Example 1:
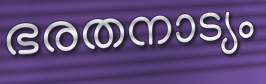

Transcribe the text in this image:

ഭരതനാട്യം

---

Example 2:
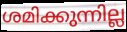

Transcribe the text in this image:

ശമിക്കുന്നില്ല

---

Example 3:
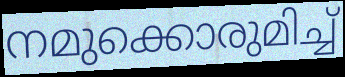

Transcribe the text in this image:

നമുക്കൊരുമിച്ച്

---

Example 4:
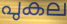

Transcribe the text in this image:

പുകല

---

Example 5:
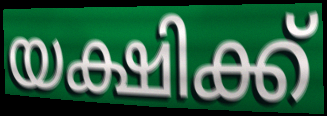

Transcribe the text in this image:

യക്ഷിക്ക്